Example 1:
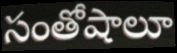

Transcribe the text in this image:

సంతోషాలూ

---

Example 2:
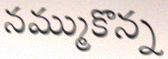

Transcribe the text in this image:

నమ్ముకొన్న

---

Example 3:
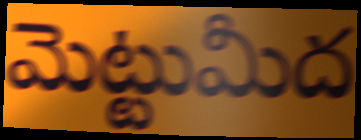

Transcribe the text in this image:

మెట్టుమీద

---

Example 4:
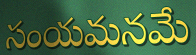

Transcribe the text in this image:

సంయమనమే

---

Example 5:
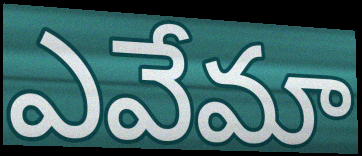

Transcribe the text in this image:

ఎవేమా